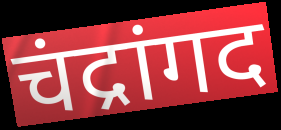
चंद्रांगद